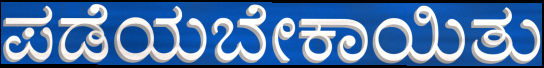
ಪಡೆಯಬೇಕಾಯಿತು